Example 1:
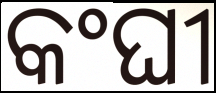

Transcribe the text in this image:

କଂଘୀ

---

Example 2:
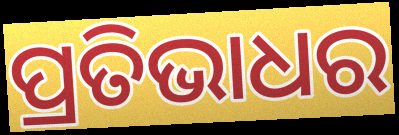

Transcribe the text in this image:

ପ୍ରତିଭାଧର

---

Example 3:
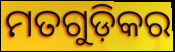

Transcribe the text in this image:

ମତଗୁଡ଼ିକର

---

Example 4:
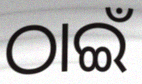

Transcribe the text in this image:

ଠାଇଁ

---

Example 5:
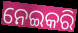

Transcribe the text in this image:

ନେଇକରି